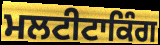
ਮਲਟੀਟਾਕਿੰਗ